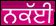
ਨਕੱਈ